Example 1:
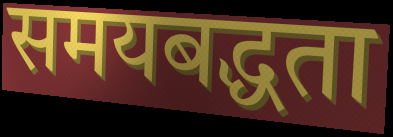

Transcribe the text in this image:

समयबद्धता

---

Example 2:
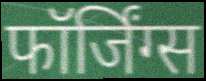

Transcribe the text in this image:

फॉर्जिंग्स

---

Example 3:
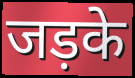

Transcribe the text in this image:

जड़के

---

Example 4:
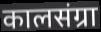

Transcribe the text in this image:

कालसंग्रा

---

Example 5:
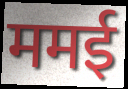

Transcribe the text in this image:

ममई